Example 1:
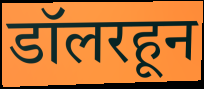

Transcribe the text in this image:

डॉलरहून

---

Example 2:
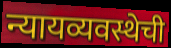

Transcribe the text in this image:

न्यायव्यवस्थेची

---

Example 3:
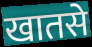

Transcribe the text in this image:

खातसे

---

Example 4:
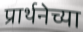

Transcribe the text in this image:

प्रार्थनेच्या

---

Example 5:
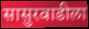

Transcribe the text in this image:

सासुरवाडीला